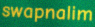
swapnalim